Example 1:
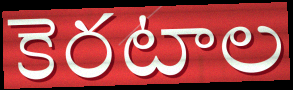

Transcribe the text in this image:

కెరటాల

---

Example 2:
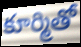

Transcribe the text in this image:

కూర్మితో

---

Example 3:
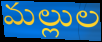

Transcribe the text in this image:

మల్లుల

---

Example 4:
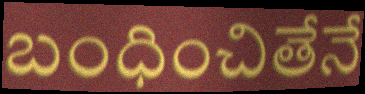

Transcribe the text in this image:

బంధించితేనే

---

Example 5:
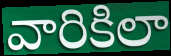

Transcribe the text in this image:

వారికిలా